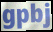
gpbj